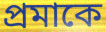
প্রমাকে